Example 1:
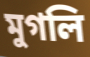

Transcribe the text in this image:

মুগলি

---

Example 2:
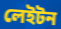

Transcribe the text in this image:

লেইটন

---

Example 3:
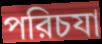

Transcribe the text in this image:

পরিচযা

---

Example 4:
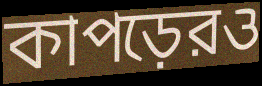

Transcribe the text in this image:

কাপড়েরও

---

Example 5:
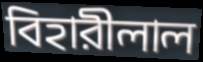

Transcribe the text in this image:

বিহারীলাল